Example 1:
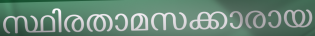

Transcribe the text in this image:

സ്ഥിരതാമസക്കാരായ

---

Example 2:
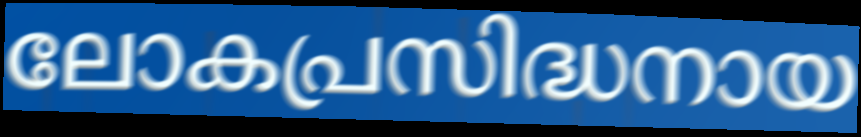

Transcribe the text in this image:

ലോകപ്രസിദ്ധനായ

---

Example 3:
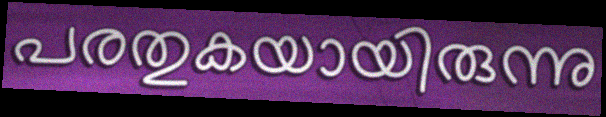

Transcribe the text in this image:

പരതുകയായിരുന്നു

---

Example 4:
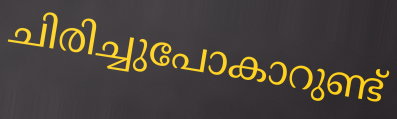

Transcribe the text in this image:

ചിരിച്ചുപോകാറുണ്ട്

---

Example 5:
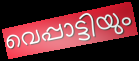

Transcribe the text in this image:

വെപ്പാട്ടിയും